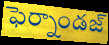
ఫెర్నాండజ్